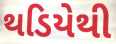
થડિયેથી